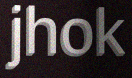
jhok